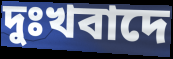
দুঃখবাদে